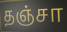
தஞ்சா